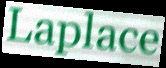
Laplace